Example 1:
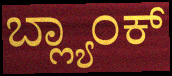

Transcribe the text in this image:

ಬ್ಲ್ಯಾಂಕ್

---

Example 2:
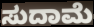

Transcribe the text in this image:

ಸುದಾಮೆ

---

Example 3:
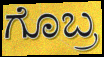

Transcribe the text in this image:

ಗೊಬ್ರ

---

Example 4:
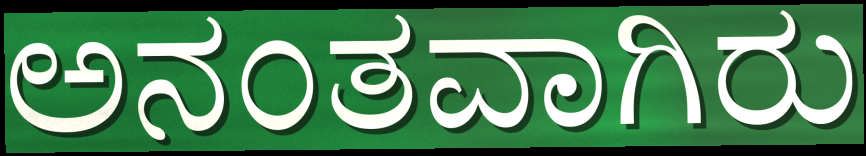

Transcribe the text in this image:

ಅನಂತವಾಗಿರು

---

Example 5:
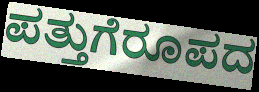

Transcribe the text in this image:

ಪತ್ತುಗೆರೂಪದ